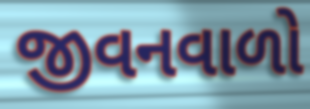
જીવનવાળો